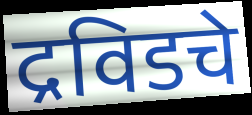
द्रविडचे